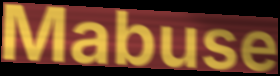
Mabuse